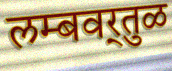
लम्बवर्तुळ